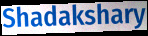
Shadakshary